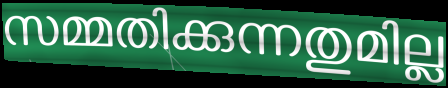
സമ്മതിക്കുന്നതുമില്ല